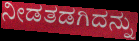
ನೀಡತಡಗಿದನ್ನು